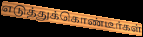
எடுத்துக்கொண்டீர்கள்